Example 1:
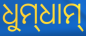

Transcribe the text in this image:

ଧୁମ୍‌ଧାମ୍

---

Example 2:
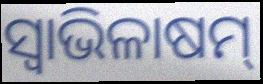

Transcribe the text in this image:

ସ୍ବାଭିଳାଷମ୍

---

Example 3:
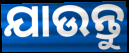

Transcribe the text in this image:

ଯାଉନ୍ତୁ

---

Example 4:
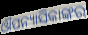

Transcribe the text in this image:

ଔପନ୍ୟାସିକାଙ୍କର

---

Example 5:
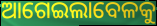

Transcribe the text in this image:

ଆଗେଇଲାବେଳକୁ